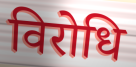
विरोधि